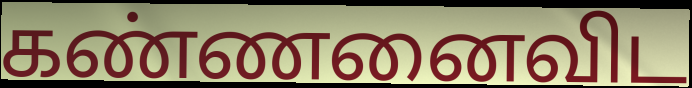
கண்ணனைவிட